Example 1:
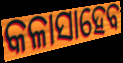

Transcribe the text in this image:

କଳାସାହେବ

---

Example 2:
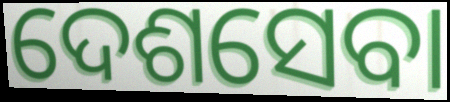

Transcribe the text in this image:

ଦେଶସେବା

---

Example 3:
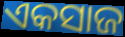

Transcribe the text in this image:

ଏକସାଜ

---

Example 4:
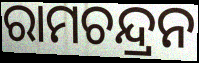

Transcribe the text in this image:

ରାମଚନ୍ଦ୍ରନ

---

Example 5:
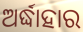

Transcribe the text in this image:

ଅର୍ଦ୍ଧାହାର